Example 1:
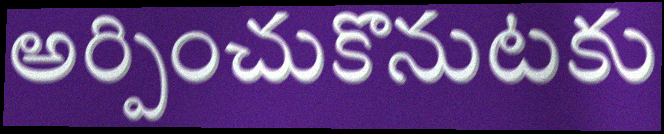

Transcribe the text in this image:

అర్పించుకొనుటకు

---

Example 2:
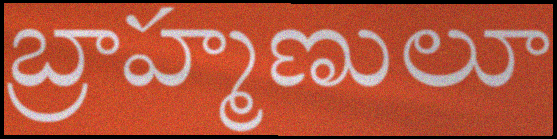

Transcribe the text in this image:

బ్రాహ్మణులూ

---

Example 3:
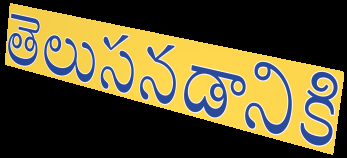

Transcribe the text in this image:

తెలుసనడానికి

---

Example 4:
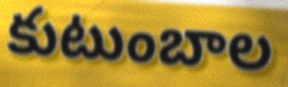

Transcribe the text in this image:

కుటుంబాల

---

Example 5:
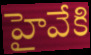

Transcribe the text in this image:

హైవేకి